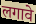
लगावे